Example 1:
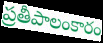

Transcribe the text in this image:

ప్రతీపాలంకారం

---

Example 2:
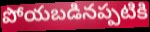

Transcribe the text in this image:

పోయబడినప్పటికి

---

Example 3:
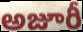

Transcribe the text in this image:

అజూరీ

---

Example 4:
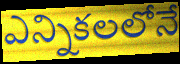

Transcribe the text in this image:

ఎన్నికలలోనే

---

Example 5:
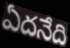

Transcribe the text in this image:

ఏదనేది